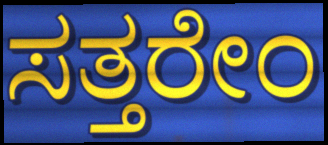
ಸತ್ತರೇಂ